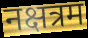
नक्षत्रम